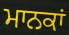
ਮਾਨਕਾਂ